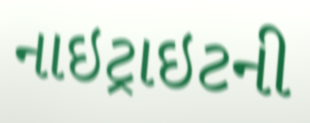
નાઇટ્રાઇટની